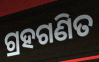
ଗ୍ରହଗଣିତ